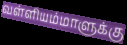
வள்ளியம்மாளுக்கு